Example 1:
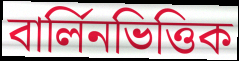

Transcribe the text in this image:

বার্লিনভিত্তিক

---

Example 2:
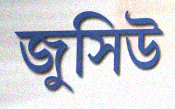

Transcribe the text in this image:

জুসিউ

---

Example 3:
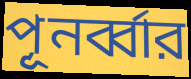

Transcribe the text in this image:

পূনর্ব্বার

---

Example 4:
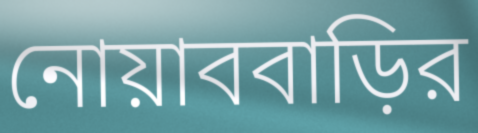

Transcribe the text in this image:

নোয়াববাড়ির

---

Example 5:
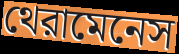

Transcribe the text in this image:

থেরামেনেস